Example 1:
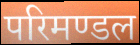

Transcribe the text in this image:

परिमण्डल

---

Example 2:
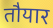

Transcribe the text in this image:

तौयार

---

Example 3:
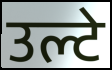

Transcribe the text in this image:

उल्टे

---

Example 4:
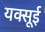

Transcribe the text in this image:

यक्सूई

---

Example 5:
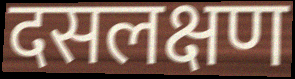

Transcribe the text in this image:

दसलक्षण